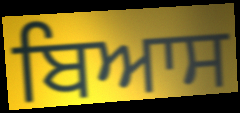
ਬਿਆਸ